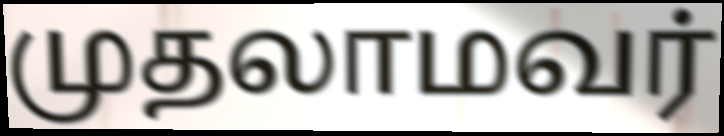
முதலாமவர்